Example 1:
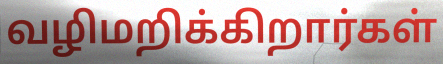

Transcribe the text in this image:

வழிமறிக்கிறார்கள்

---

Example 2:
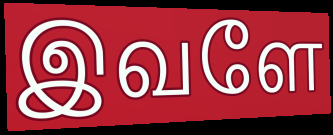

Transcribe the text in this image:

இவளே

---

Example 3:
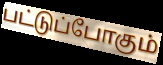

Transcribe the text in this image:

பட்டுப்போகும்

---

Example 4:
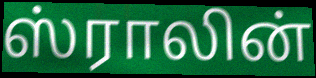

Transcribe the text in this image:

ஸ்ராலின்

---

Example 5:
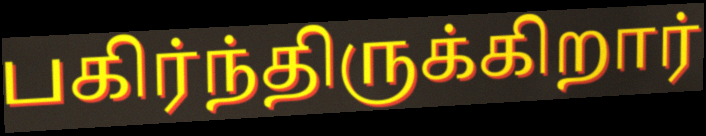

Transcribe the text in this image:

பகிர்ந்திருக்கிறார்